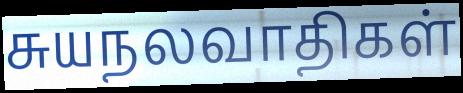
சுயநலவாதிகள்